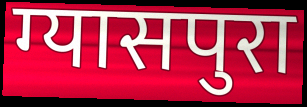
ग्यासपुरा